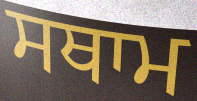
ਸਥਾਮ